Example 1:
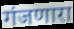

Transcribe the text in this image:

गंजणारा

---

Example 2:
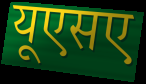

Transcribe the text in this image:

यूएसए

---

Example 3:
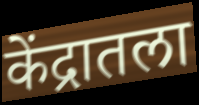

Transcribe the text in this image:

केंद्रातला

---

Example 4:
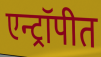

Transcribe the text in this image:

एन्ट्रॉपीत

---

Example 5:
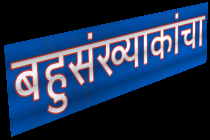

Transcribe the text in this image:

बहुसंख्याकांचा